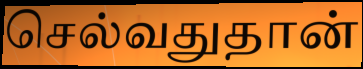
செல்வதுதான்